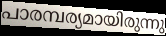
പാരമ്പര്യമായിരുന്നു